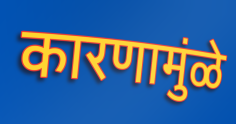
कारणामुंळे